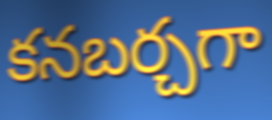
కనబర్చగా